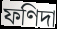
ফণিদা